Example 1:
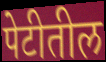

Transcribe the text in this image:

पेटीतील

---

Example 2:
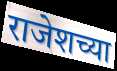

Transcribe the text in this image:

राजेशच्या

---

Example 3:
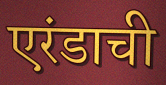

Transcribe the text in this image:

एरंडाची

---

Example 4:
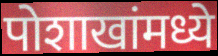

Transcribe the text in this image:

पोशाखांमध्ये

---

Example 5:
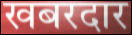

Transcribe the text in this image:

खबरदार